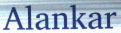
Alankar